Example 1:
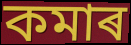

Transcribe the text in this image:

কমাৰ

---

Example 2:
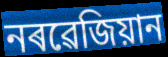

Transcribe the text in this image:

নৰৱেজিয়ান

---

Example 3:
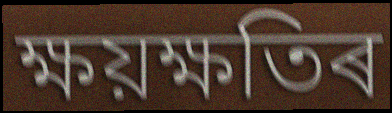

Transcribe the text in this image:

ক্ষয়ক্ষতিৰ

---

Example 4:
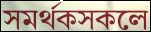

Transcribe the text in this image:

সমৰ্থকসকলে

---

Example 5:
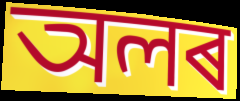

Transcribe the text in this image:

অলৰ